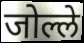
जोल्ले